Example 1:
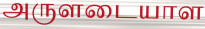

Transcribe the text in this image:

அருளடையாள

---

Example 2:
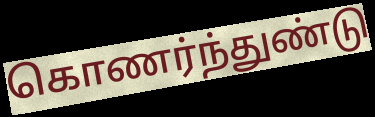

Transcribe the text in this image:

கொணர்ந்துண்டு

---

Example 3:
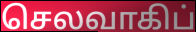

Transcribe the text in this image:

செலவாகிப்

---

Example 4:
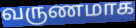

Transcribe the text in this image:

வருணமாக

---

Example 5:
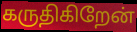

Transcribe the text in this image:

கருதிகிறேன்